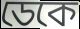
ডেকে